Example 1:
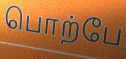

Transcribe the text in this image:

பொற்பே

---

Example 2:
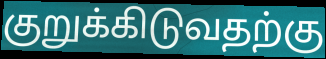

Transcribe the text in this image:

குறுக்கிடுவதற்கு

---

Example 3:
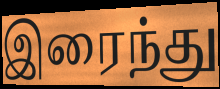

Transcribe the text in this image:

இரைந்து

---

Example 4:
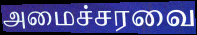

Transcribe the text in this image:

அமைச்சரவை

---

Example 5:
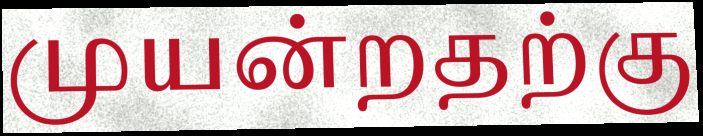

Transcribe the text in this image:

முயன்றதற்கு